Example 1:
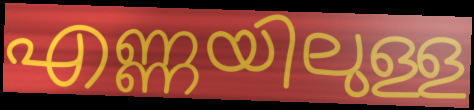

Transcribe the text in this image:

എണ്ണയിലുള്ള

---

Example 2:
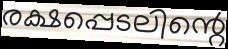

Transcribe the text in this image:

രക്ഷപ്പെടലിന്റെ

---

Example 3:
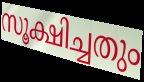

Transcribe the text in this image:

സൂക്ഷിച്ചതും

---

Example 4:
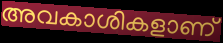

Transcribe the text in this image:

അവകാശികളാണ്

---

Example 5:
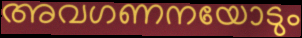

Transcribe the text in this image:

അവഗണനയോടും